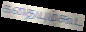
கதையும்கூட